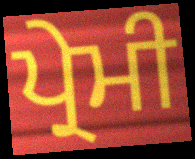
ਪ੍ਰੇਮੀ